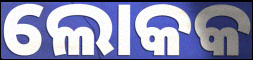
ଲୋକକ